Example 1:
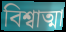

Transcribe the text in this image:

বিশ্বাত্মা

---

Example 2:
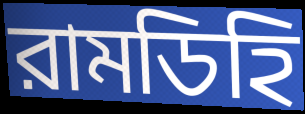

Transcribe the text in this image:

রামডিহি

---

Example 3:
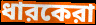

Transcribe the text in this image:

ধারকেরা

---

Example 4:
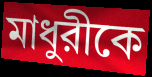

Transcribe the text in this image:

মাধুরীকে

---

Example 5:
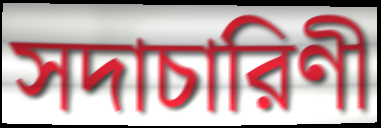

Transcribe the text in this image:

সদাচারিণী